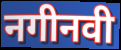
नगीनवी